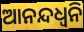
ଆନନ୍ଦଧ୍ଵନି